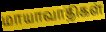
மாயாவாதிகள்